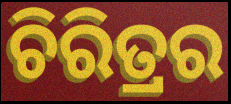
ଚିରିତ୍ରର